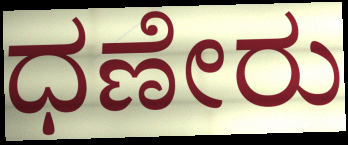
ಧಣೇರು